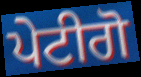
ਪੇਟੀਗੋ